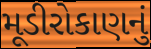
મૂડીરોકાણનું